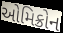
ઓમિક્રોન